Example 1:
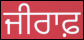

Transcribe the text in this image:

ਜੀਰਾਫ਼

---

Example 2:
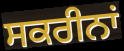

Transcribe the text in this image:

ਸਕਰੀਨਾਂ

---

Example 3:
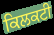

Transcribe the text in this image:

ਕਿਲਕਟੀ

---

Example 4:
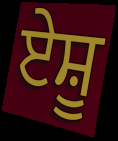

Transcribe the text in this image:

ਏਸ਼ੂ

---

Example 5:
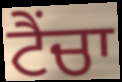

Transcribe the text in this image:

ਟੈਂਚਾ